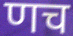
णच